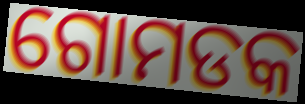
ଗୋମଡକ